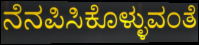
ನೆನಪಿಸಿಕೊಳ್ಳುವಂತೆ